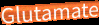
Glutamate